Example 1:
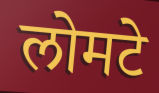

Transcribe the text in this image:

लोमटे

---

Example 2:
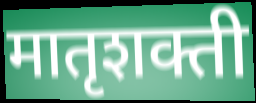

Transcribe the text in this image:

मातृशक्ती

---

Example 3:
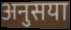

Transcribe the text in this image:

अनुसया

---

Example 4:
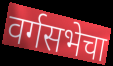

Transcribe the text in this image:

वर्गसभेचा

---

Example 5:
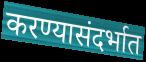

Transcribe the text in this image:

करण्यासंदर्भात